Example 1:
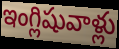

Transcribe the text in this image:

ఇంగ్లిషువాళ్లు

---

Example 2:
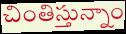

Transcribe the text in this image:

చింతిస్తున్నాం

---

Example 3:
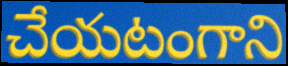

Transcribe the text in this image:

చేయటంగాని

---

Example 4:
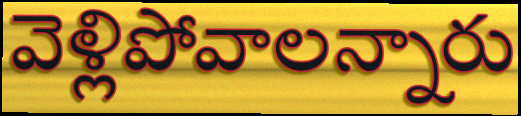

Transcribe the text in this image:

వెళ్లిపోవాలన్నారు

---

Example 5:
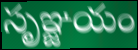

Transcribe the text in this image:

సృఞ్జయం